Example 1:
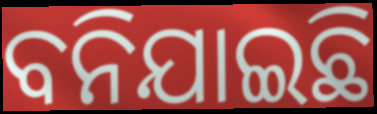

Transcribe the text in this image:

ବନିଯାଇଛି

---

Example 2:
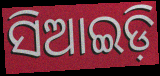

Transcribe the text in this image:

ସିଆଇଡ଼ି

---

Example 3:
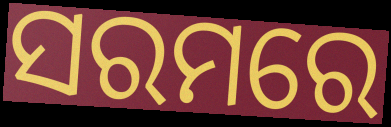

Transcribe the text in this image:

ସରମରେ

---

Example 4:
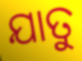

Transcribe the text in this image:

ଯାତୁ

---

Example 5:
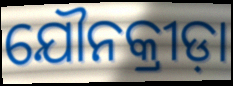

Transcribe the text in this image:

ଯୌନକ୍ରୀଡ଼ା